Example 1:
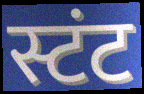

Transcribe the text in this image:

स्टंट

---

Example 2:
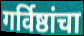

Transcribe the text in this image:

गर्विष्ठांचा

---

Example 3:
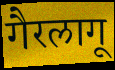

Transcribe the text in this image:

गैरलागू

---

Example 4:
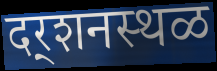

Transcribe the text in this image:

दर्शनस्थळ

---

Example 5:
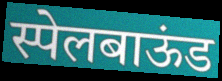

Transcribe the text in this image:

स्पेलबाऊंड